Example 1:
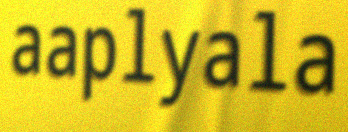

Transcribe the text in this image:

aaplyala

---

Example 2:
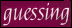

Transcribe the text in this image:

guessing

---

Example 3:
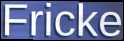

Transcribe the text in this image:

Fricke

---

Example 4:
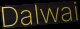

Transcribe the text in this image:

Dalwai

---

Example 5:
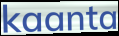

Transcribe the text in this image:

kaanta